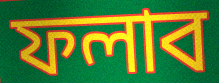
ফলাব